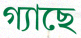
গ্যাছে